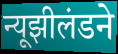
न्यूझीलंडने